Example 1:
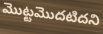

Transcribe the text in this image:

మొట్టమొదటిదని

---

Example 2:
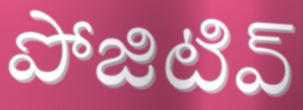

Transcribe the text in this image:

పోజిటివ్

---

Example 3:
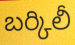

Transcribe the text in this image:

బర్కిలీ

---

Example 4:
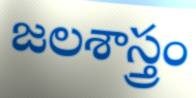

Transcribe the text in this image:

జలశాస్త్రం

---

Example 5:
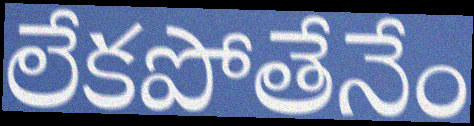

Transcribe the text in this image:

లేకపోతేనేం